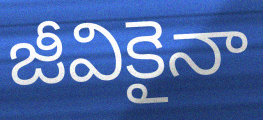
జీవికైనా